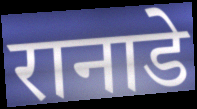
रानाडे